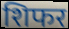
शिफर